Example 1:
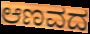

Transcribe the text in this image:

ಆಣವದ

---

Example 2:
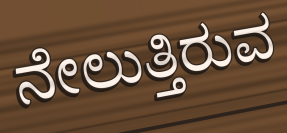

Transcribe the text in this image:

ನೇಲುತ್ತಿರುವ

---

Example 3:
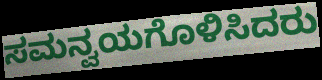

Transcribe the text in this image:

ಸಮನ್ವಯಗೊಳಿಸಿದರು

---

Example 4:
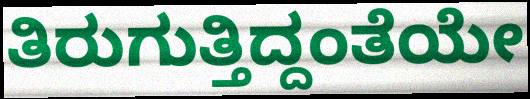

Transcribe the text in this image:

ತಿರುಗುತ್ತಿದ್ದಂತೆಯೇ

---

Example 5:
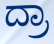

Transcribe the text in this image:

ದ್ರಾ